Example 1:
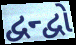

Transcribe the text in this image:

દ્વન્દ્વો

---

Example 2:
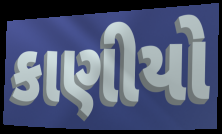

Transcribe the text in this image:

કાણીયો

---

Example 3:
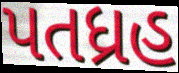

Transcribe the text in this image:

પતધ્રહ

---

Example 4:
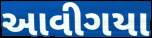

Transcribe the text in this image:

આવીગયા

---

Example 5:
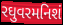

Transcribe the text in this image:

રઘુવરમનિશં